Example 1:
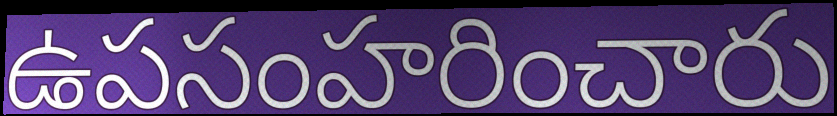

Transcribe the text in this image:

ఉపసంహరించారు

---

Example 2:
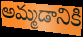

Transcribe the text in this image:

అమ్మడానికి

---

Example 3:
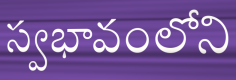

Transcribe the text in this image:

స్వభావంలోని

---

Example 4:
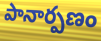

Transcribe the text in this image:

పానార్పణం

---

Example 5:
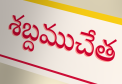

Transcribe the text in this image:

శబ్దముచేత